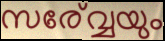
സര്വ്വേയും